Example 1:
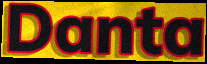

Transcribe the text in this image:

Danta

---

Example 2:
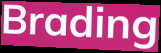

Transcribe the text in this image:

Brading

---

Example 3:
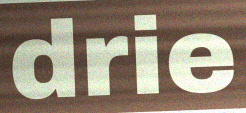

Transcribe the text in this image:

drie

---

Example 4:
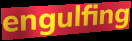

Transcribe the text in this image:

engulfing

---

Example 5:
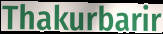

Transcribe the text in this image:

Thakurbarir